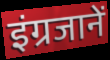
इंग्रजानें